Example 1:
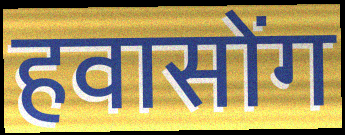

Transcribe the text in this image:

हवासोंग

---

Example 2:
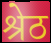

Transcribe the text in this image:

श्रेठ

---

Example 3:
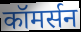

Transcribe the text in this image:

कॉमर्सन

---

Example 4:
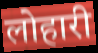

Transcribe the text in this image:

लोहारी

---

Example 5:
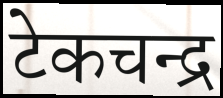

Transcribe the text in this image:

टेकचन्द्र